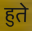
हुते